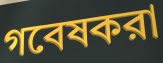
গবেষকরা